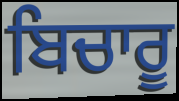
ਬਿਚਾਰੂ